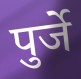
पुर्जे